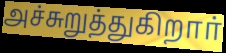
அச்சுறுத்துகிறார்